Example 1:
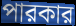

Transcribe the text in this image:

পারকার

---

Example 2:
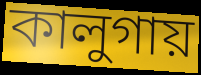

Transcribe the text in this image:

কালুগায়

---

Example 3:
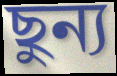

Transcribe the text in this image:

ছুন্য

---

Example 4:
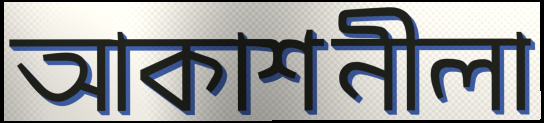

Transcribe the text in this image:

আকাশনীলা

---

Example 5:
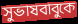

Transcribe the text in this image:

সুভাষবাবুকে